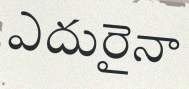
ఎదురైనా